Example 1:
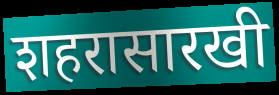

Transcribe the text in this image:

शहरासारखी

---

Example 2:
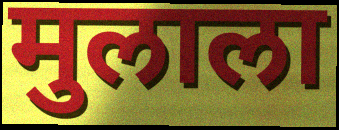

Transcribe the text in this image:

मुलाला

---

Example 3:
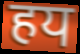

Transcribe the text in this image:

हय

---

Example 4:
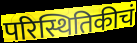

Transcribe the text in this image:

परिस्थितिकीचं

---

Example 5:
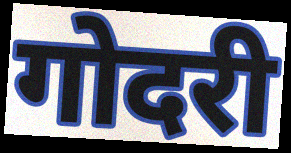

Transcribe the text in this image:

गोदरी